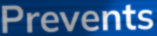
Prevents